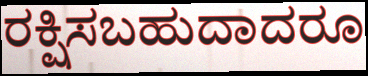
ರಕ್ಷಿಸಬಹುದಾದರೂ